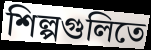
শিল্পগুলিতে